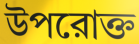
উপরোক্ত